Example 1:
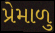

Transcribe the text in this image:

પ્રેમાળુ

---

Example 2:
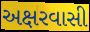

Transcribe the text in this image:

અક્ષરવાસી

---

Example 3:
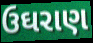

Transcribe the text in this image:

ઉઘરાણ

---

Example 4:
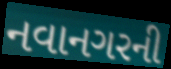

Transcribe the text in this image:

નવાનગરની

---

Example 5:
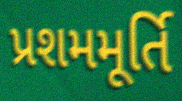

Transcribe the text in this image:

પ્રશમમૂર્તિ